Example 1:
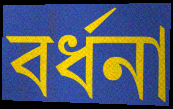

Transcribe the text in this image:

বর্ধনা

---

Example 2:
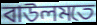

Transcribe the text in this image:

বাউলমতে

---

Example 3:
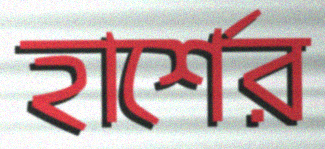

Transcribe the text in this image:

হার্শের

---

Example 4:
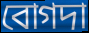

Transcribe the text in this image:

বোগদা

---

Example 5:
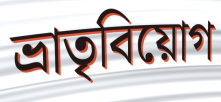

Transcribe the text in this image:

ভ্রাতৃবিয়োগ